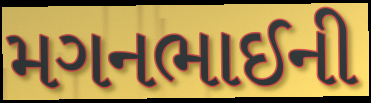
મગનભાઈની